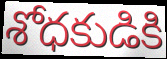
శోధకుడికి